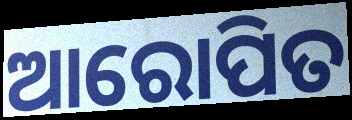
ଆରୋପିତ